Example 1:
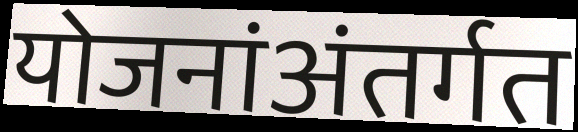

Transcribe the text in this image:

योजनांअंतर्गत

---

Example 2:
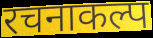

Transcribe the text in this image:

रचनाकल्प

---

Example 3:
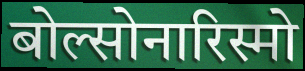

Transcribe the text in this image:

बोल्सोनारिस्मो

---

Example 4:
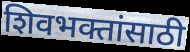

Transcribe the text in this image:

शिवभक्तांसाठी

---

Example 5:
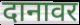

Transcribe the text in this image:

दानावर